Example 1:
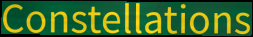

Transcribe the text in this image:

Constellations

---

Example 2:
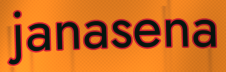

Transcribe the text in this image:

janasena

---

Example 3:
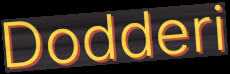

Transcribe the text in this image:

Dodderi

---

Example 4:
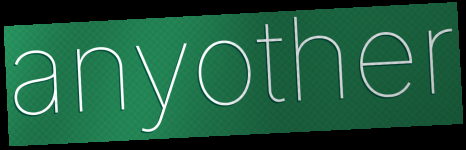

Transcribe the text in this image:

anyother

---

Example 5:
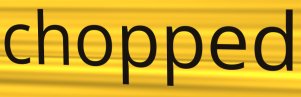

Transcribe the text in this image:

chopped